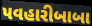
પવહારીબાબા